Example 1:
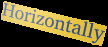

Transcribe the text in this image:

Horizontally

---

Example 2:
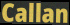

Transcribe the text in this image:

Callan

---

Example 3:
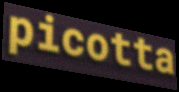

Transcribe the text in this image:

picotta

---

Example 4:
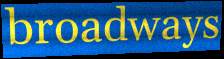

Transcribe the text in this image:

broadways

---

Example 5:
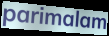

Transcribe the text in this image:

parimalam